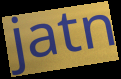
jatn